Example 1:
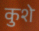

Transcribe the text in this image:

कुशे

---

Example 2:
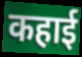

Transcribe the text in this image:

कहाई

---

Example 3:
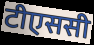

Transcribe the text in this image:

टीएससी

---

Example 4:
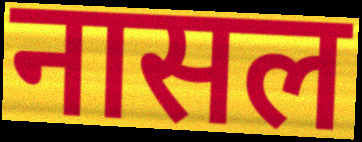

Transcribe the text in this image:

नासल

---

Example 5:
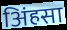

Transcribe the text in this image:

अिंहसा